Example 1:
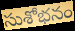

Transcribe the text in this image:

సుశోభనం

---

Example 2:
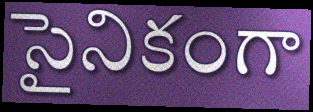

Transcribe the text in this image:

సైనికంగా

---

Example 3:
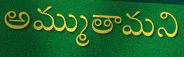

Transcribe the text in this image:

అమ్ముతామని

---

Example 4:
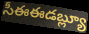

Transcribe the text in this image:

సీఈఈడబ్ల్యూ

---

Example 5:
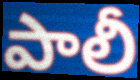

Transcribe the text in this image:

పాలీ